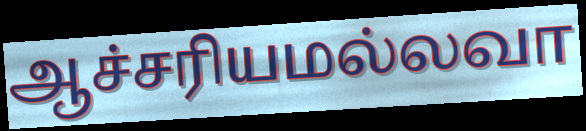
ஆச்சரியமல்லவா